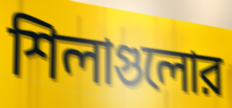
শিলাগুলোর